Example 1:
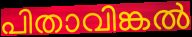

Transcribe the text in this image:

പിതാവിങ്കൽ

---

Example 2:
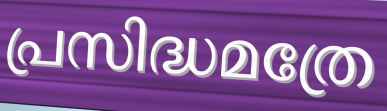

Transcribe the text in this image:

പ്രസിദ്ധമത്രേ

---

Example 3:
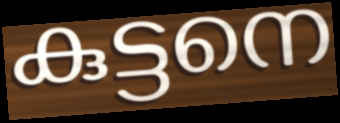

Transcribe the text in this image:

കുട്ടനെ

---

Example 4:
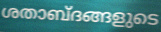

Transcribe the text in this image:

ശതാബ്ദങ്ങളുടെ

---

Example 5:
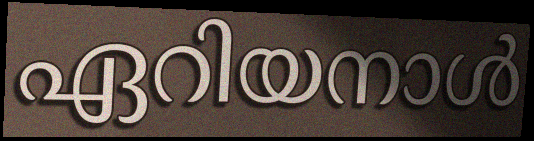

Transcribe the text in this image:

ഏറിയനാൾ